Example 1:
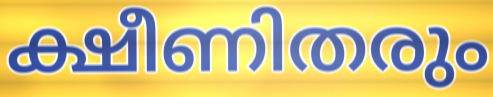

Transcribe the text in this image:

ക്ഷീണിതരും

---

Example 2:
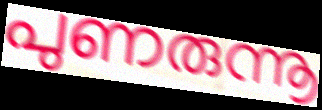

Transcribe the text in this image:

പുണരുന്നൂ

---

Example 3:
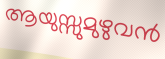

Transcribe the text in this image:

ആയുസ്സുമുഴുവൻ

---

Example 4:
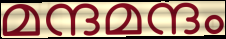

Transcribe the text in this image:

മന്ദമന്ദം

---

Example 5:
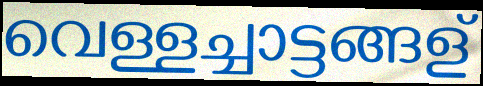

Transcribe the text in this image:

വെള്ളച്ചാട്ടങ്ങള്